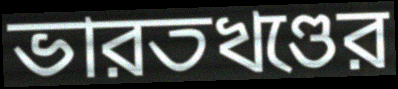
ভারতখণ্ডের